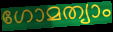
ഗോമത്യാം